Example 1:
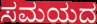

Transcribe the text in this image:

ಸಮಯದ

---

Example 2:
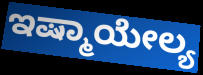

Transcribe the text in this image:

ಇಷ್ಮಾಯೇಲ್ಯ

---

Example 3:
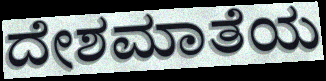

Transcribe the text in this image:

ದೇಶಮಾತೆಯ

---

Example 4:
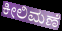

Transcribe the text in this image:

ಕೀಲಿಮಣೆ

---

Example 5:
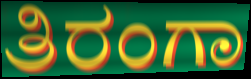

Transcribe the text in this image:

ತಿರಂಗಾ